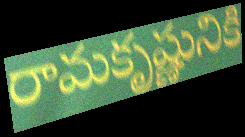
రామకృష్ణునికి